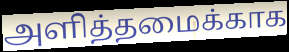
அளித்தமைக்காக